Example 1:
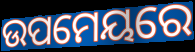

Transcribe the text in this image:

ଉପମେୟରେ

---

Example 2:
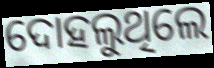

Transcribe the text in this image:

ଦୋହଲୁଥିଲେ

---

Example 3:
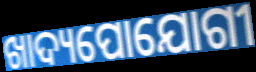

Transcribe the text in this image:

ଖାଦ୍ୟପୋଯୋଗୀ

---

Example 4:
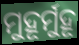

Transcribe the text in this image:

ମୁହୂର୍ମୁହୂ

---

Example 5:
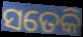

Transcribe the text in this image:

ସତେକି